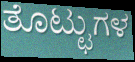
ತೊಟ್ಟುಗಳ